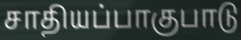
சாதியப்பாகுபாடு